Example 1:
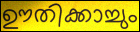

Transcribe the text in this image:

ഊതിക്കാച്ചും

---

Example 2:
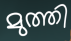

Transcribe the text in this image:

മുത്തി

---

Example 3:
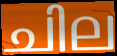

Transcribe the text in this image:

ചില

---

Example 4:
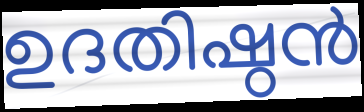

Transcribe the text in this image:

ഉദതിഷ്ഠൻ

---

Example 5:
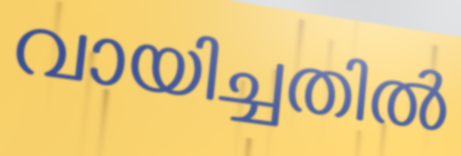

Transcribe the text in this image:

വായിച്ചതിൽ